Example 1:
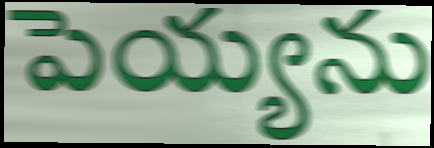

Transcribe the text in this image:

పెయ్యను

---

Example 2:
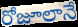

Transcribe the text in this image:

రోజూలానే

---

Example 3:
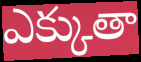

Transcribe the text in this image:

ఎక్కుతా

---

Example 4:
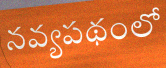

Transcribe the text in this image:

నవ్యపథంలో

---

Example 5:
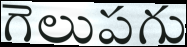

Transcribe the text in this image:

గెలుపగు